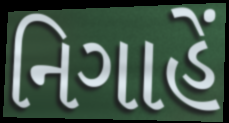
નિગાહેં